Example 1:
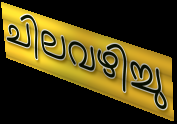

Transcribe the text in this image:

ചിലവഴിച്ചു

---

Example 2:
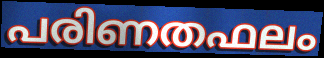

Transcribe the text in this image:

പരിണതഫലം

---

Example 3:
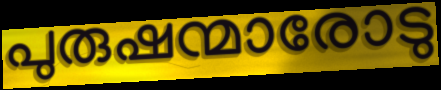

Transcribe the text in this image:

പുരുഷന്മാരോടു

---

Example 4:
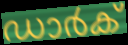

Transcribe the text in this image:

ഡാർക്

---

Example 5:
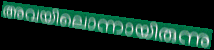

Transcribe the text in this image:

അവയിലൊന്നായിരുന്നു